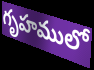
గృహములో